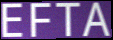
EFTA